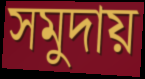
সমুদায়